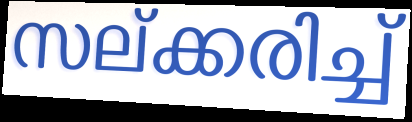
സല്ക്കരിച്ച്